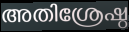
അതിശ്രേഷ്ഠ